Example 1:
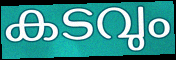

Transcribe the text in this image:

കടവും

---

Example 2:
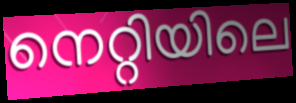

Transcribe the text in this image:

നെറ്റിയിലെ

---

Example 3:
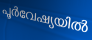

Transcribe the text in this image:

പൂർവേഷ്യയിൽ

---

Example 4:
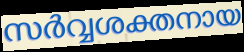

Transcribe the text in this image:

സർവ്വശക്തനായ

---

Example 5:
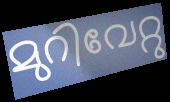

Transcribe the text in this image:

മുറിവേറ്റു